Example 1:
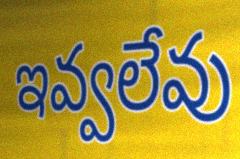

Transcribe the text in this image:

ఇవ్వలేవు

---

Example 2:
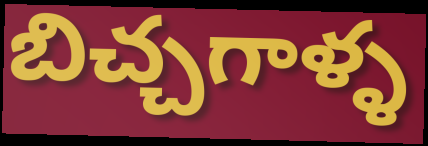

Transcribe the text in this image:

బిచ్చగాళ్ళ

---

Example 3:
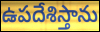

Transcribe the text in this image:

ఉపదేశిస్తాను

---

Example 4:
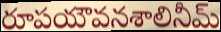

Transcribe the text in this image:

రూపయౌవనశాలినీమ్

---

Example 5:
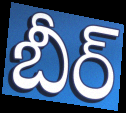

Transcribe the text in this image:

బీర్